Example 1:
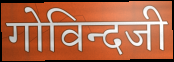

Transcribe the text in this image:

गोविन्दजी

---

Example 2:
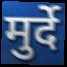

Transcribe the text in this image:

मुर्दे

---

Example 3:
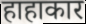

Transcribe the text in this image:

हाहाकार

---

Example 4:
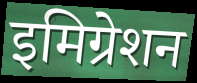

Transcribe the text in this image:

इमिग्रेशन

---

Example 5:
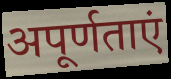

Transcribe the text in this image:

अपूर्णताएं